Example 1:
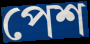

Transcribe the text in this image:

পেশ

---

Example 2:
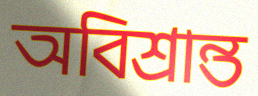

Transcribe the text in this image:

অবিশ্রান্ত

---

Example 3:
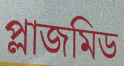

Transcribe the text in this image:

প্লাজমিড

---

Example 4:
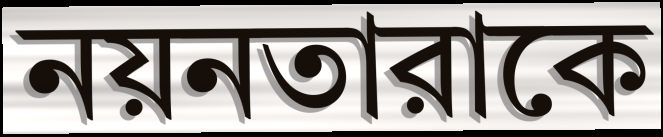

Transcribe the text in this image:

নয়নতারাকে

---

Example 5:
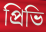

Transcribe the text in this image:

প্রিভি